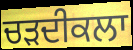
ਚੜਦੀਕਲਾ